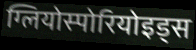
ग्लियोस्पोरियोइड्स